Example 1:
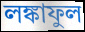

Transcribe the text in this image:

লঙ্কাফুল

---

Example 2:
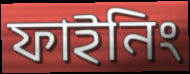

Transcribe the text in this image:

ফাইনিং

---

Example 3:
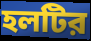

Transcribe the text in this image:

হলটির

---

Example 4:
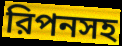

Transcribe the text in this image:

রিপনসহ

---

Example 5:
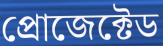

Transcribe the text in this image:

প্রোজেক্টেড